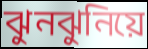
ঝুনঝুনিয়ে